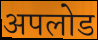
अपलोड